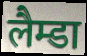
लैम्डा